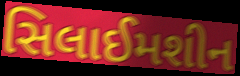
સિલાઈમશીન